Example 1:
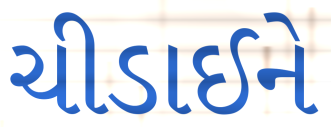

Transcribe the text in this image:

ચીડાઈને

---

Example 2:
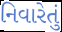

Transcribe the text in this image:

નિવારેતું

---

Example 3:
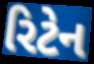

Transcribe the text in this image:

રિટેન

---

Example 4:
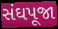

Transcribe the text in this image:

સંઘપૂજા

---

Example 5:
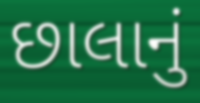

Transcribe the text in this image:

છાલાનું